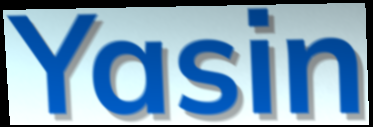
Yasin